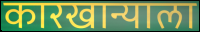
कारखान्याला